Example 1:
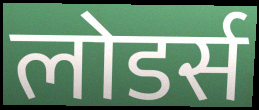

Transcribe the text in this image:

लोडर्स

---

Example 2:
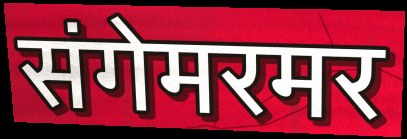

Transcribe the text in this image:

संगेमरमर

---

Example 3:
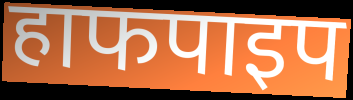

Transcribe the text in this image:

हाफपाइप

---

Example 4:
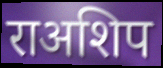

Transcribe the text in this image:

राअशिप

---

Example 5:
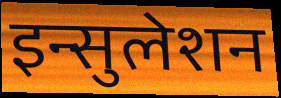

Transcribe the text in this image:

इन्सुलेशन